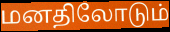
மனதிலோடும்